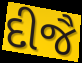
દીજૈ